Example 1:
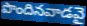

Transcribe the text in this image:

పొందినవాడవై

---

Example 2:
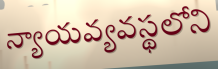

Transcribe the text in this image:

న్యాయవ్యవస్థలోని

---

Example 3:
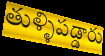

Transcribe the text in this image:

తుళ్ళిపడ్డారు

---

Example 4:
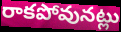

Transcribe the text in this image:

రాకపోవునట్లు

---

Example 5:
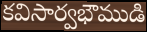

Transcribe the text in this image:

కవిసార్వభౌముడి